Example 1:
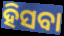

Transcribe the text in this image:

ହିସବା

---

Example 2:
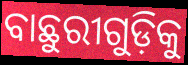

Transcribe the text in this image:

ବାଛୁରୀଗୁଡ଼ିକୁ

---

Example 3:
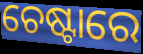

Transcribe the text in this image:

ଚେଷ୍ଟାରେ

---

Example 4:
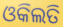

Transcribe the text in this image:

ଓକିଲତି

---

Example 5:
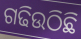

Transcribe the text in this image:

ଗଢିଉଠିଛି